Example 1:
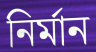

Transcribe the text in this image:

নির্মান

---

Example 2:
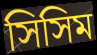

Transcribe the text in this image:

সিসিম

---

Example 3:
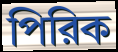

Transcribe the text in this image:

পিরিক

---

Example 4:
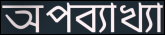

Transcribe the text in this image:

অপব্যাখ্যা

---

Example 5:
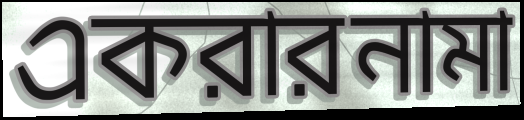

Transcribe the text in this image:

একরারনামা